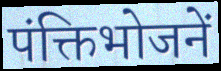
पंक्तिभोजनें